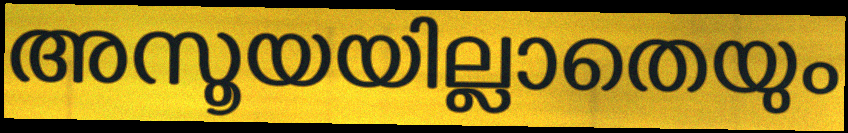
അസൂയയില്ലാതെയും